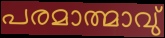
പരമാത്മാവു്